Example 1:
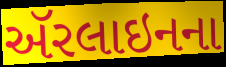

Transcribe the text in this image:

ઍરલાઇનના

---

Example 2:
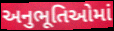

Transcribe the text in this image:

અનુભૂતિઓમાં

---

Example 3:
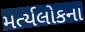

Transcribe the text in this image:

મર્ત્યલોકના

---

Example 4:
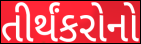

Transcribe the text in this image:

તીર્થંકરોનો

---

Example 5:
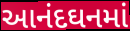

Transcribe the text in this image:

આનંદઘનમાં